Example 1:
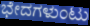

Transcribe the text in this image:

ಭೇದಗಳುಂಟು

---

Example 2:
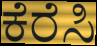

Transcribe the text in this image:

ಕೆರೆಸಿ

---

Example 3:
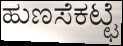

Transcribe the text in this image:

ಹುಣಸೆಕಟ್ಟೆ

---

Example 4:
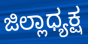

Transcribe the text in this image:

ಜಿಲ್ಲಾಧ್ಯಕ್ಷ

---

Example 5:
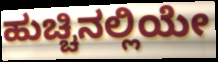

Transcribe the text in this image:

ಹುಚ್ಚಿನಲ್ಲಿಯೇ